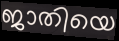
ജാതിയെ